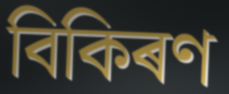
বিকিৰণ